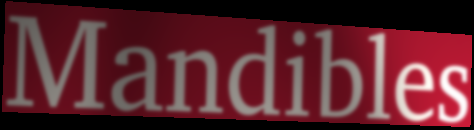
Mandibles